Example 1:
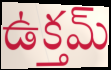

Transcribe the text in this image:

ఉక్తమ్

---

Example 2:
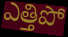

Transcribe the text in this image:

ఎత్తిపో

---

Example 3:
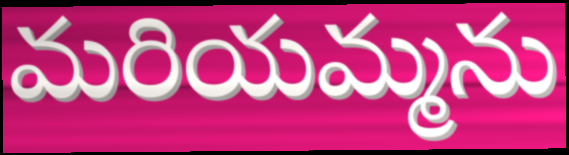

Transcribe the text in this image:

మరియమ్మను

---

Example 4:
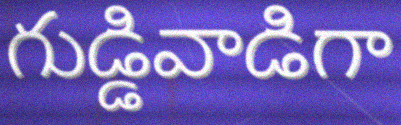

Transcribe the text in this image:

గుడ్డివాడిగా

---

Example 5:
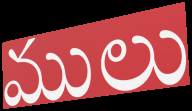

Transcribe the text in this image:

ములు